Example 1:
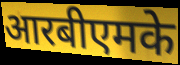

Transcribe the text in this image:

आरबीएमके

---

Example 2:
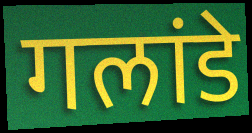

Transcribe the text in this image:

गलांडे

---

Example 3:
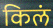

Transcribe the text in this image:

किलं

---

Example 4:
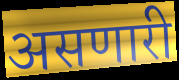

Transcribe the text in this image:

असणारी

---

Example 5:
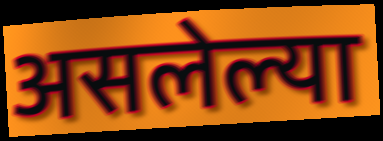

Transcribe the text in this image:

असलेल्या